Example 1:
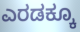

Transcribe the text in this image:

ಎರಡಕ್ಕೂ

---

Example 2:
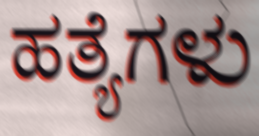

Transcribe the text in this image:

ಹತ್ಯೆಗಳು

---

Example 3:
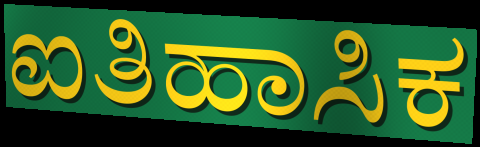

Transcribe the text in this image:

ಐತಿಹಾಸಿಕ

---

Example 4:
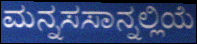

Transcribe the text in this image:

ಮನ್ನಸಸಾನ್ನಲ್ಲಿಯೆ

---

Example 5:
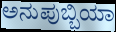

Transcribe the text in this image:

ಅನುಪುಬ್ಬಿಯಾ